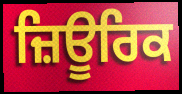
ਜ਼ਿਊਰਿਕ